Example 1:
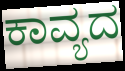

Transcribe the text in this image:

ಕಾವ್ಯದ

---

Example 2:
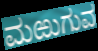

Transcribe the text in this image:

ಮಱುಗುವ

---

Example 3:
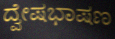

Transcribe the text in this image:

ದ್ವೇಷಭಾಷಣ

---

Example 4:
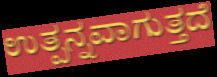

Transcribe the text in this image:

ಉತ್ಪನ್ನವಾಗುತ್ತದೆ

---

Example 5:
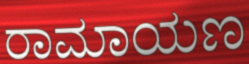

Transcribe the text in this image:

ರಾಮಾಯಣ